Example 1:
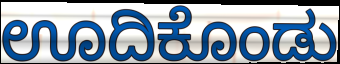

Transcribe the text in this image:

ಊದಿಕೊಂಡು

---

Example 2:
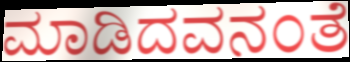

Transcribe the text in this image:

ಮಾಡಿದವನಂತೆ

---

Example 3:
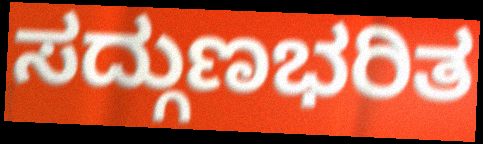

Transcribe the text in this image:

ಸದ್ಗುಣಭರಿತ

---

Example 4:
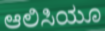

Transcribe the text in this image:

ಆಲಿಸಿಯೂ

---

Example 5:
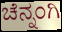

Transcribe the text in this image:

ಚೆನ್ನಂಗಿ